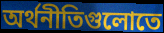
অর্থনীতিগুলোতে